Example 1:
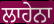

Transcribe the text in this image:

ਲਾਹੇਨਾ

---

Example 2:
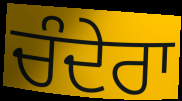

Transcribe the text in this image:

ਚੰਦੇਰਾ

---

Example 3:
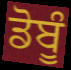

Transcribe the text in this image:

ਡੋਬੂੰ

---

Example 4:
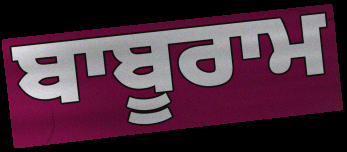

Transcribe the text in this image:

ਬਾਬੂਰਾਮ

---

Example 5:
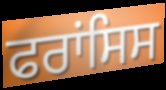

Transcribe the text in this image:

ਫਰਾਂਸਿਸ